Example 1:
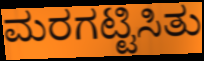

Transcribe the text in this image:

ಮರಗಟ್ಟಿಸಿತು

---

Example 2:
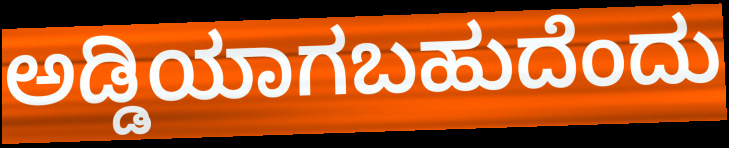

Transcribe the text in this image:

ಅಡ್ಡಿಯಾಗಬಹುದೆಂದು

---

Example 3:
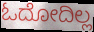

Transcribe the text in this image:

ಓದೋದಿಲ್ಲ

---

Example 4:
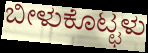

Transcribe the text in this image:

ಬೀಳುಕೊಟ್ಟಳು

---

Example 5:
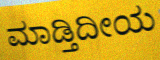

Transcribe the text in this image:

ಮಾಡ್ತಿದೀಯ